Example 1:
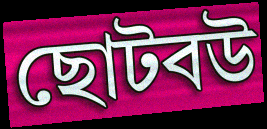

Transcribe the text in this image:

ছোটবউ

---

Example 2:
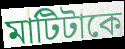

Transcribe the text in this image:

মাটিটাকে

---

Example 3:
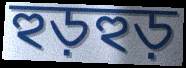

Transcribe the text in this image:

হুড়হুড়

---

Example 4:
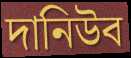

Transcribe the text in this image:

দানিউব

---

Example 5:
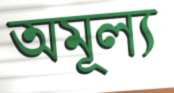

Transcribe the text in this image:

অমূল্য